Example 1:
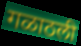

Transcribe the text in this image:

गळाठली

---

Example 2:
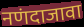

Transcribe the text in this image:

नणंदाजावा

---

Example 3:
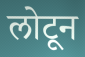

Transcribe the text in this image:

लोटून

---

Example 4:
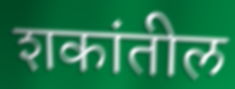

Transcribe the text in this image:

शकांतील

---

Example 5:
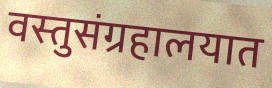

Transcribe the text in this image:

वस्तुसंग्रहालयात